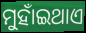
ମୁହାଁଇଥାଏ